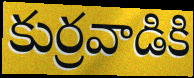
కుర్రవాడికి